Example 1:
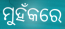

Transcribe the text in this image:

ମୁହଁକରେ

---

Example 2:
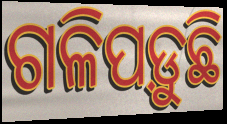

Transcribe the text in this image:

ଗଳିପଡ଼ୁଛି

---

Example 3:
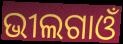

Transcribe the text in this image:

ଭୀଲଗାଓଁ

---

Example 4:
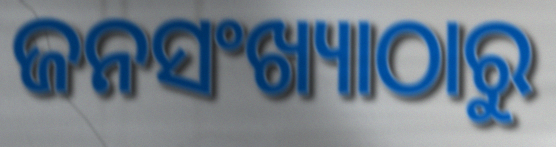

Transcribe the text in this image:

ଜନସଂଖ୍ୟାଠାରୁ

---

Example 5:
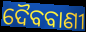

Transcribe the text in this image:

ଦୈବବାଣୀ